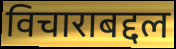
विचाराबद्दल